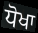
ਧੋਖਾ